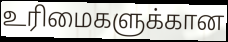
உரிமைகளுக்கான